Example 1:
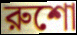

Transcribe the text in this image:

রুশো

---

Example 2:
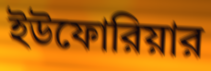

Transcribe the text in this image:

ইউফোরিয়ার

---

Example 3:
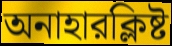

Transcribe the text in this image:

অনাহারক্লিষ্ট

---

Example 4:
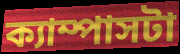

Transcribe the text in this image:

ক্যাম্পাসটা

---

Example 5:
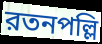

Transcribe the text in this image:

রতনপল্লি